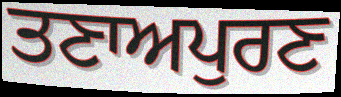
ਤਣਾਅਪੁਰਣ